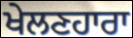
ਖੇਲਣਹਾਰਾ